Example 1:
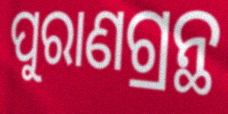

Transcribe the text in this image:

ପୁରାଣଗ୍ରନ୍ଥ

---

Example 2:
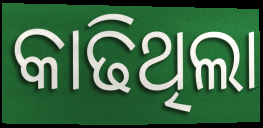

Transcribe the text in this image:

କାଢିଥିଲା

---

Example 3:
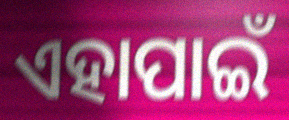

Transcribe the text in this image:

ଏହାପାଇଁ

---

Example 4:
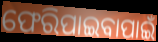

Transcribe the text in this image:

ଫେରିପାଇବାପାଇଁ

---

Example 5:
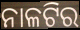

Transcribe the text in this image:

ନାଳଟିର